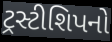
ટ્રસ્ટીશિપનો